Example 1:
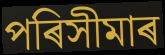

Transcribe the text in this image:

পৰিসীমাৰ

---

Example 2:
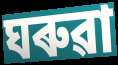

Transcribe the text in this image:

ঘৰুৱা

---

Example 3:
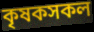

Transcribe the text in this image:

কৃষকসকল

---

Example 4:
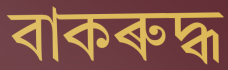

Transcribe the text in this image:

বাকৰুদ্ধ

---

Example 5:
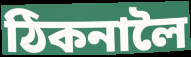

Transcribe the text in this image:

ঠিকনালৈ